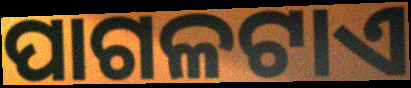
ପାଗଳଟାଏ